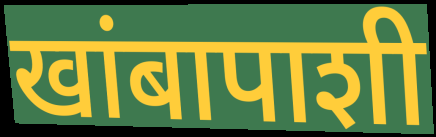
खांबापाशी